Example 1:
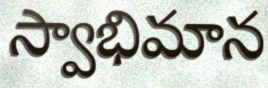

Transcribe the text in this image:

స్వాభిమాన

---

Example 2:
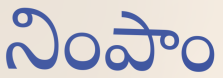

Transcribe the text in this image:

నింపాం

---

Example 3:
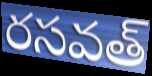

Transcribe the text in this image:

రసవత్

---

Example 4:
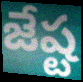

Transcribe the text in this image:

జేష్ట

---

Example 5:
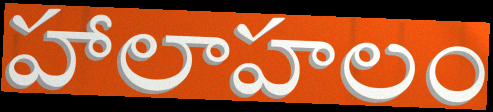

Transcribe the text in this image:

హాలాహలం